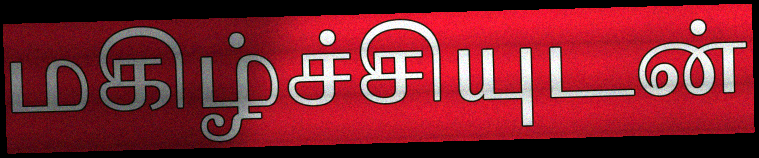
மகிழ்ச்சியுடன்